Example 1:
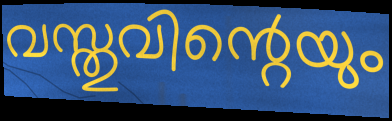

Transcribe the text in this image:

വസ്തുവിന്റെയും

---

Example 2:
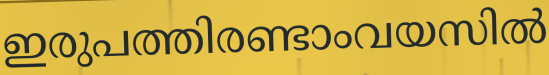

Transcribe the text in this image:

ഇരുപത്തിരണ്ടാംവയസിൽ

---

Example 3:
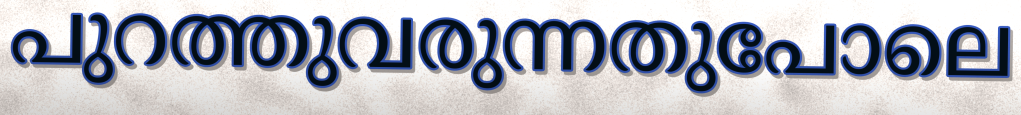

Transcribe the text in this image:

പുറത്തുവരുന്നതുപോലെ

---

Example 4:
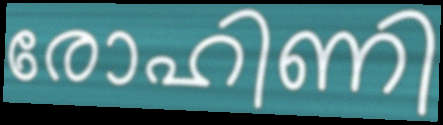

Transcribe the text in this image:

രോഹിണി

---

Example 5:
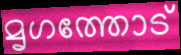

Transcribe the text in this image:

മൃഗത്തോട്